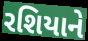
રશિયાને